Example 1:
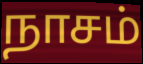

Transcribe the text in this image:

நாசம்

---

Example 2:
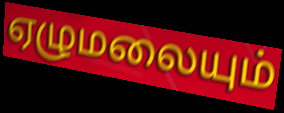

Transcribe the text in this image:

ஏழுமலையும்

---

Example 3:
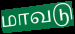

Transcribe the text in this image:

மாவடு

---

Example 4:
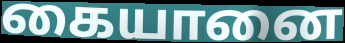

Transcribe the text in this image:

கையானை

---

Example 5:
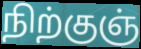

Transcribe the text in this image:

நிற்குஞ்